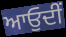
ਆਓੁਦੀਂ